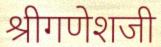
श्रीगणेशजी